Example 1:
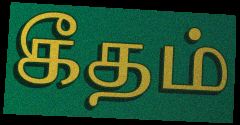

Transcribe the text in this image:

கீதம்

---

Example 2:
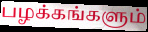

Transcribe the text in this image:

பழக்கங்களும்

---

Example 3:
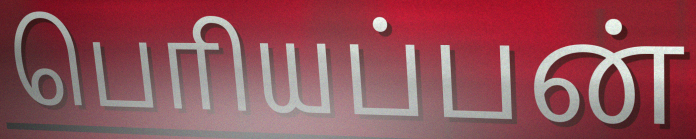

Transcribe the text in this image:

பெரியப்பன்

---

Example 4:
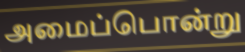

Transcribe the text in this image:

அமைப்பொன்று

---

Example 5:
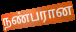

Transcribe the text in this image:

நண்பரான